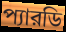
প্যারডি